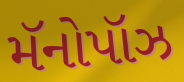
મૅનોપૉઝ